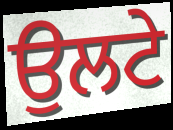
ਉਲਟੇ